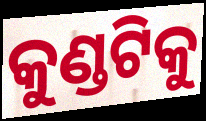
କୁଣ୍ଡଟିକୁ